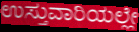
ಉಸ್ತುವಾರಿಯಲ್ಲೇ